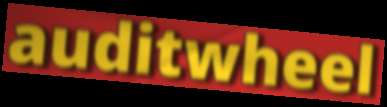
auditwheel